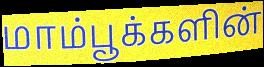
மாம்பூக்களின்